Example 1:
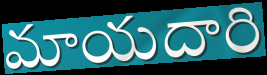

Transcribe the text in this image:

మాయదారి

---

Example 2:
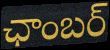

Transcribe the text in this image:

ఛాంబర్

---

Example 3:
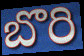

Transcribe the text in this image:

బొరి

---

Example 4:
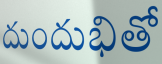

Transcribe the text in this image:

దుందుభితో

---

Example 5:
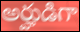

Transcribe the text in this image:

అర్హుడిగా